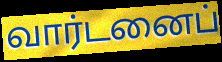
வார்டனைப்